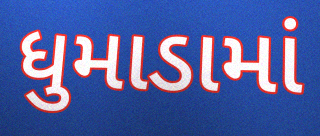
ધુમાડામાં